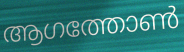
ആഗത്തോൺ